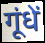
गूंधें